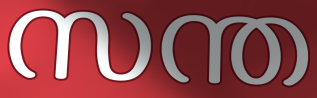
സന്ത